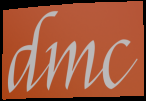
dmc